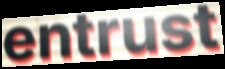
entrust